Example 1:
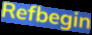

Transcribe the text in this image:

Refbegin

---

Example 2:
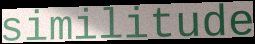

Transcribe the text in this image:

similitude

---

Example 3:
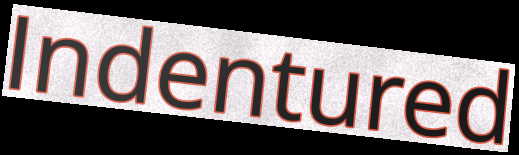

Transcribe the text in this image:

Indentured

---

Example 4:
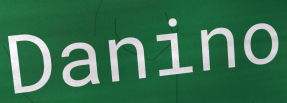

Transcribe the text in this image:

Danino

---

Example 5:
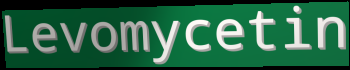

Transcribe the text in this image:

Levomycetin